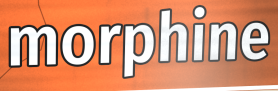
morphine